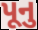
પૂનુ